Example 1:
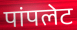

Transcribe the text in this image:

पांपलेट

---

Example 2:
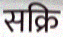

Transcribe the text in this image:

सक्रि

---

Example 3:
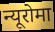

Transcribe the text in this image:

न्यूरोमा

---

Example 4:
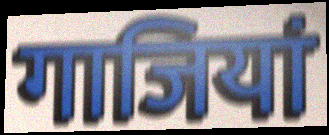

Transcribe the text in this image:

गाजियां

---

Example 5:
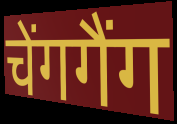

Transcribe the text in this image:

चेंगगैंग